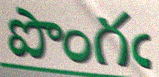
పొంగఁ